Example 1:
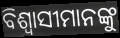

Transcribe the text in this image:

ବିଶ୍ୱାସୀମାନଙ୍କୁ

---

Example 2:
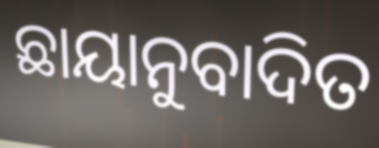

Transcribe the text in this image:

ଛାୟାନୁବାଦିତ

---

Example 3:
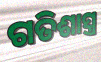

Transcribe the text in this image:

ଗତିଶାସ୍ତ୍ର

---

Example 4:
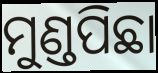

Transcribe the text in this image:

ମୁଣ୍ଡପିଛା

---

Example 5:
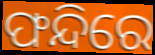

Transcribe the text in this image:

ଫନ୍ଦିରେ